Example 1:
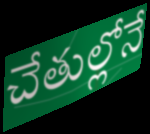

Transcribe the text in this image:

చేతుల్లోనే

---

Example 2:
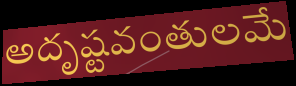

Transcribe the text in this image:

అదృష్టవంతులమే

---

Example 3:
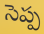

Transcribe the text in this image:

సెప్ప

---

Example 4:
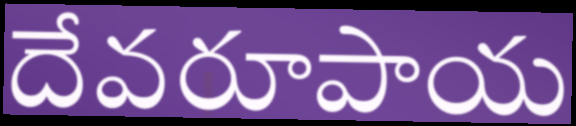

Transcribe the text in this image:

దేవరూపాయ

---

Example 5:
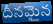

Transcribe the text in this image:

దీనమైన